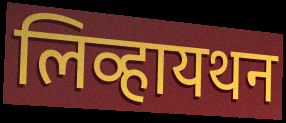
लिव्हायथन